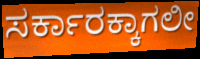
ಸರ್ಕಾರಕ್ಕಾಗಲೀ